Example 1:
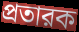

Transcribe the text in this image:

প্রতারক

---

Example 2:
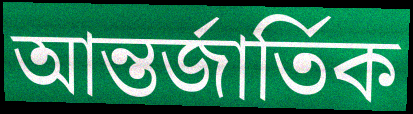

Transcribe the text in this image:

আন্তর্জার্তিক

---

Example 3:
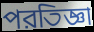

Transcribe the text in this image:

পরতিজ্ঞা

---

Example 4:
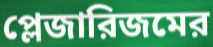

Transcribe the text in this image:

প্লেজারিজমের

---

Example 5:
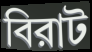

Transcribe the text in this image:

বিরাট